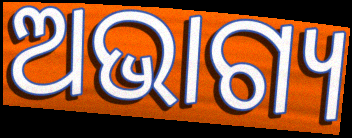
ଅଭାଗ୍ୟ